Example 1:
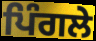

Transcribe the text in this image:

ਪਿੰਗਲੇ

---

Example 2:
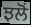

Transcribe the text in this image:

ਝਲੋਂ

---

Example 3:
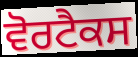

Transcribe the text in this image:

ਵੋਰਟੈਕਸ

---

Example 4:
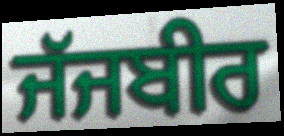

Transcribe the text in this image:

ਜੱਜਬੀਰ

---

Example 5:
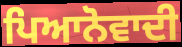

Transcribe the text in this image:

ਪਿਆਨੋਵਾਦੀ